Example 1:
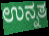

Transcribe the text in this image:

ಉನ್ನತ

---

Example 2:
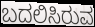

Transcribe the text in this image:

ಬದಲಿಸಿರುವ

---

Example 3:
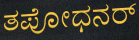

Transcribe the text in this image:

ತಪೋಧನರ್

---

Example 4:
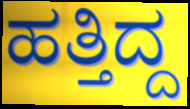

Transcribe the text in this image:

ಹತ್ತಿದ್ದ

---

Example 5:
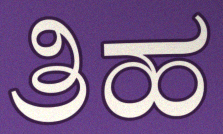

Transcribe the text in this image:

ತಿಹ